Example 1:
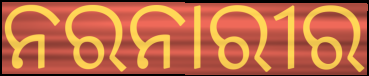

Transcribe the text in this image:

ନରନାରୀର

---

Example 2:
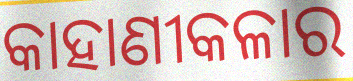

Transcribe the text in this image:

କାହାଣୀକଳାର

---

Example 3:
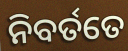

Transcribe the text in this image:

ନିବର୍ତତେ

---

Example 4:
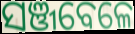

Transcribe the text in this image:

ସଞ୍ଜବେଳେ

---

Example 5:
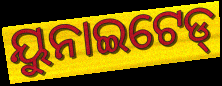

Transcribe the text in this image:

ୟୁନାଇଟେଡ୍